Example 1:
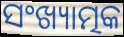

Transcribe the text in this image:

ସଂଖ୍ୟାତ୍ମକ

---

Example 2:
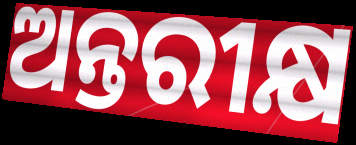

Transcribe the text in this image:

ଅନ୍ତରୀକ୍ଷ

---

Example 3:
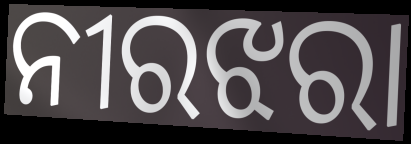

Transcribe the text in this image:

ନୀରଝରା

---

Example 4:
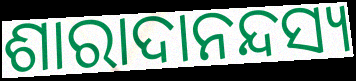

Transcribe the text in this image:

ଶାରାଦାନନ୍ଦସ୍ୟ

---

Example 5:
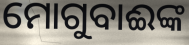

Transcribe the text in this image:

ମୋଗୁବାଈଙ୍କ